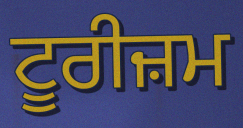
ਟੂਰੀਜ਼ਮ